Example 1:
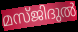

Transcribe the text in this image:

മസ്ജിദുൽ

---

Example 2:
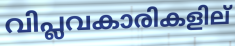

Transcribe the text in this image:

വിപ്ലവകാരികളില്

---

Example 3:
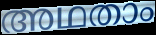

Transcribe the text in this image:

അഥതാം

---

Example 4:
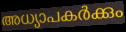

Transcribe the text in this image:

അധ്യാപകർക്കും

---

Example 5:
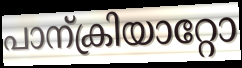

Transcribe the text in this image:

പാന്ക്രിയാറ്റോ